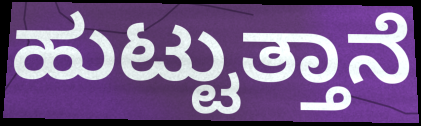
ಹುಟ್ಟುತ್ತಾನೆ